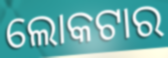
ଲୋକଟାର